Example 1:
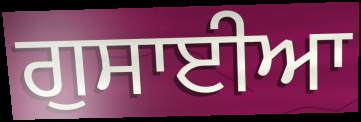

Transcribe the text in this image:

ਗੁਸਾਈਆ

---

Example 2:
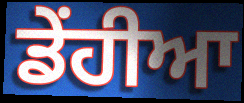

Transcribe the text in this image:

ਡੇਂਹੀਆ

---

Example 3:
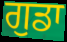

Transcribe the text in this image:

ਗੁਡਾ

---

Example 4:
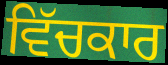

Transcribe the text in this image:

ਵਿੱਚਕਾਰ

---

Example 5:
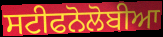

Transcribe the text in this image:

ਸਟੀਫਨੋਲੋਬੀਆ